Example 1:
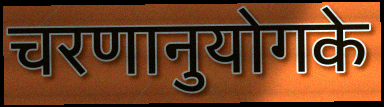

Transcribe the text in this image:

चरणानुयोगके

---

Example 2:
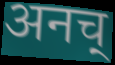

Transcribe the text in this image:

अनच्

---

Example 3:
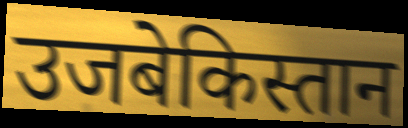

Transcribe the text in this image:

उजबेकिस्तान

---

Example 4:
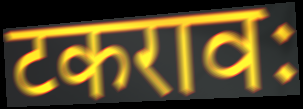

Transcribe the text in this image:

टकरावः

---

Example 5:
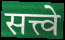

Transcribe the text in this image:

सत्त्वे